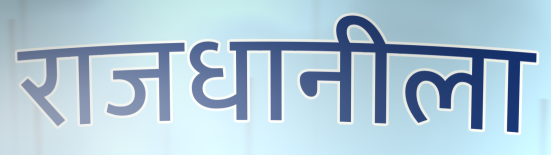
राजधानीला